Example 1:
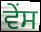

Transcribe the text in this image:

ਵੇਂਸ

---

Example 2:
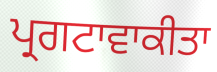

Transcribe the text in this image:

ਪ੍ਰਗਟਾਵਾਕੀਤਾ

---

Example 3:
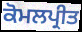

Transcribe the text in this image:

ਕੋਮਲਪ੍ਰੀਤ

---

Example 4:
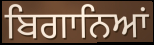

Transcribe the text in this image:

ਬਿਗਾਨਿਆਂ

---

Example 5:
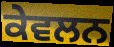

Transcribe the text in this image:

ਕੇਵਲਨ